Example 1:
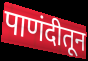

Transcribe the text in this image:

पाणंदीतून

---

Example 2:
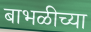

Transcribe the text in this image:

बाभळीच्या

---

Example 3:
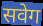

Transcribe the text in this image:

सवेग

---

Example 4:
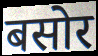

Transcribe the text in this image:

बसोर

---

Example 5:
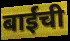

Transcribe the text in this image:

बाईंची